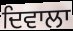
ਦਿਵਾਲਾ